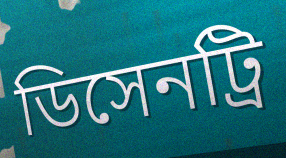
ডিসেনট্রি